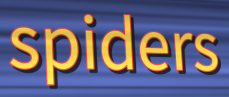
spiders